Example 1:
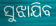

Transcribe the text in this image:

ସୁଝାଯିବ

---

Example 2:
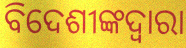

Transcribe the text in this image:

ବିଦେଶୀଙ୍କଦ୍ୱାରା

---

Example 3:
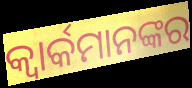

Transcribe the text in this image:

କ୍ୱାର୍କମାନଙ୍କର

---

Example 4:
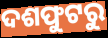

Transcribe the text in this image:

ଦଶଫୁଟରୁ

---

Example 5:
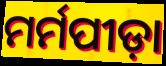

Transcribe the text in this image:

ମର୍ମପୀଡ଼ା